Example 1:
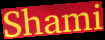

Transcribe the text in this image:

Shami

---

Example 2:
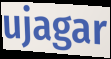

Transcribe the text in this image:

ujagar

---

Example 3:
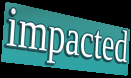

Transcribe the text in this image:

impacted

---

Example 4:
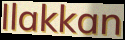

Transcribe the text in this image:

Ilakkan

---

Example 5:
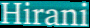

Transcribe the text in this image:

Hirani